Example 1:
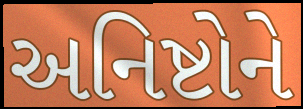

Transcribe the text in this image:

અનિષ્ટોને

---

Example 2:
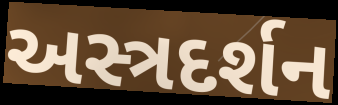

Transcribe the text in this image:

અસ્ત્રદર્શન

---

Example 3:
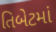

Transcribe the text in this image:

તિબેટમાં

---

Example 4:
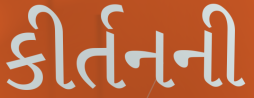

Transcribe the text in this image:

કીર્તનની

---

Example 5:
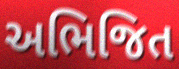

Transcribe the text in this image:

અભિજિત